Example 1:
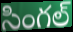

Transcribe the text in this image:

సింగల్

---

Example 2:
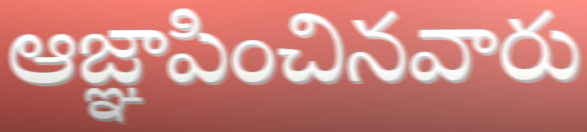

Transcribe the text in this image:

ఆజ్ఞాపించినవారు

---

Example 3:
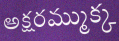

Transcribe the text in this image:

అక్షరమ్ముక్క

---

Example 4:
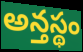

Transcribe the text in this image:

అన్తస్థం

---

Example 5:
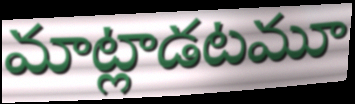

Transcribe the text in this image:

మాట్లాడటమూ